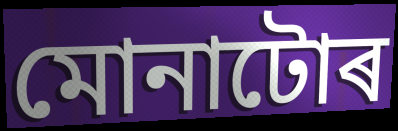
মোনাটোৰ